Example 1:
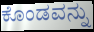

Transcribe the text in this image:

ಕೊಂಡವನ್ನು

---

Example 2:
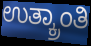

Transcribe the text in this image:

ಉತ್ಕ್ರಾಂತಿ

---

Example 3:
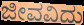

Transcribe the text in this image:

ಜೀವವಿದು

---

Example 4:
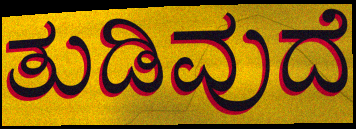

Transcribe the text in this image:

ತುಡಿವುದೆ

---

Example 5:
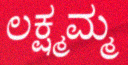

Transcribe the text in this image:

ಲಕ್ಷ್ಮಮ್ಮ